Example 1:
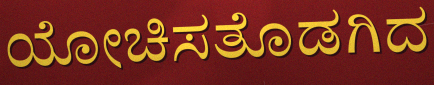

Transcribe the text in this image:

ಯೋಚಿಸತೊಡಗಿದ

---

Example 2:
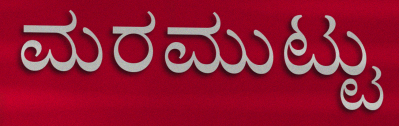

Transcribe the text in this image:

ಮರಮುಟ್ಟು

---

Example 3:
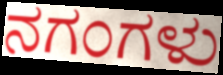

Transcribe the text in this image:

ನಗಂಗಳು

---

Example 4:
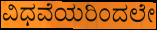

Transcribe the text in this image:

ವಿಧವೆಯರಿಂದಲೇ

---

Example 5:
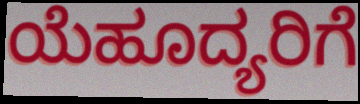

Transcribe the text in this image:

ಯೆಹೂದ್ಯರಿಗೆ